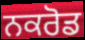
ਨਕਰੋਡ